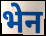
भेन